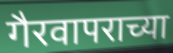
गैरवापराच्या